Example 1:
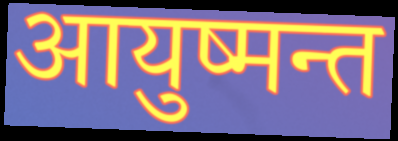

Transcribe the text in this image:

आयुष्मन्त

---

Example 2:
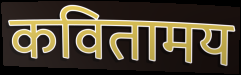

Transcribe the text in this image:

कवितामय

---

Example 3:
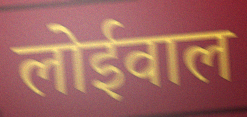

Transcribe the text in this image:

लोईवाल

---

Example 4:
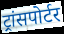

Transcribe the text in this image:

ट्रांसपोर्टर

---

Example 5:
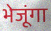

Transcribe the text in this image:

भेजूंगा